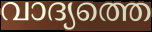
വാദ്യത്തെ